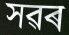
সৱৰ